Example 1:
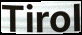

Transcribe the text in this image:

Tirol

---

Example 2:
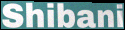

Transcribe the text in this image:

Shibani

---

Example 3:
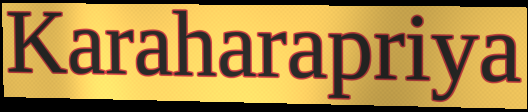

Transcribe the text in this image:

Karaharapriya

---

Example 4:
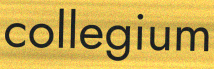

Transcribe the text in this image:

collegium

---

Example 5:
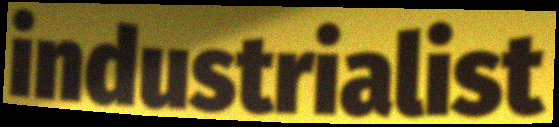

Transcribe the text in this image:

industrialist